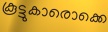
കൂട്ടുകാരൊക്കെ